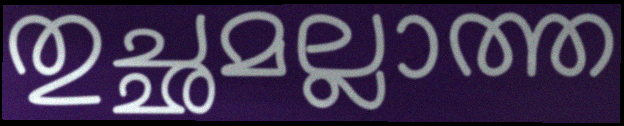
തുച്ഛമല്ലാത്ത